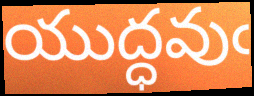
యుద్ధవుఁ